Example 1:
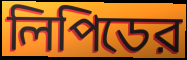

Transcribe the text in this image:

লিপিডের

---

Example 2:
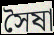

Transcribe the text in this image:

সৈষা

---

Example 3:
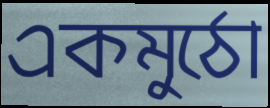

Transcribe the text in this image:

একমুঠো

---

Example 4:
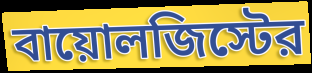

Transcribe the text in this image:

বায়োলজিস্টের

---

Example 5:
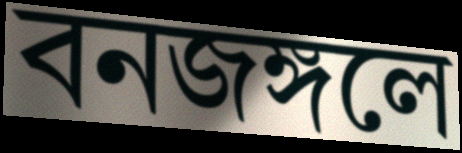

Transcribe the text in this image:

বনজঙ্গলে